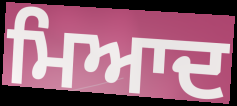
ਮਿਆਦ